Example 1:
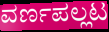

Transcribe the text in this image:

ವರ್ಣಪಲ್ಲಟ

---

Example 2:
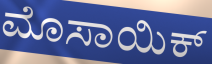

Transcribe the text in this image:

ಮೊಸಾಯಿಕ್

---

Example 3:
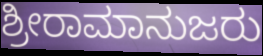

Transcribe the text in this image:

ಶ್ರೀರಾಮಾನುಜರು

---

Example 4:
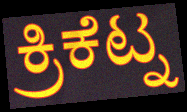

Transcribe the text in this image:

ಕ್ರಿಕೆಟ್ನ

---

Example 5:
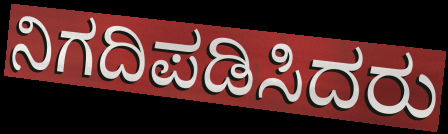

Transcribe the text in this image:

ನಿಗದಿಪಡಿಸಿದರು